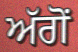
ਅੱਗੋਂ